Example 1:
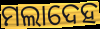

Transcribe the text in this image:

ମଲାଦେହ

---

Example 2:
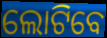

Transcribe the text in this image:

ଲୋଟିବେ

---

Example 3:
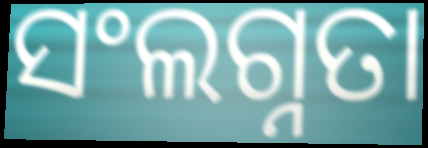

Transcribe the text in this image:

ସଂଲଗ୍ନତା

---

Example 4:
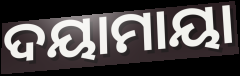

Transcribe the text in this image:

ଦୟାମାୟା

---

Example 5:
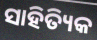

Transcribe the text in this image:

ସାହିତ୍ୟିକ